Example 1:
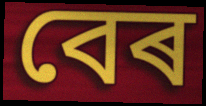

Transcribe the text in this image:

বেৰ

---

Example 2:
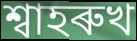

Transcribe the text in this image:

শ্বাহৰুখ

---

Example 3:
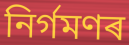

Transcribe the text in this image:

নিৰ্গমণৰ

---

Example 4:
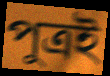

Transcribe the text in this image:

পুত্ৰই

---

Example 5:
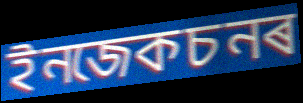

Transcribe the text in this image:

ইনজেকচনৰ